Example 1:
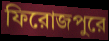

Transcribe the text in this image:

ফিরোজপুরে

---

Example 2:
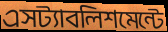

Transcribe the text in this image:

এসট্যাবলিশমেন্টে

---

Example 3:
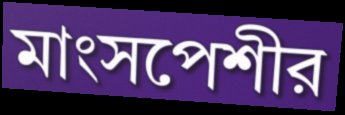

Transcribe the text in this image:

মাংসপেশীর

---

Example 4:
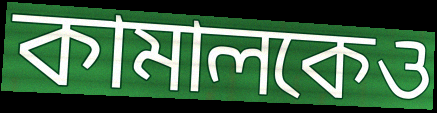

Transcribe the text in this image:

কামালকেও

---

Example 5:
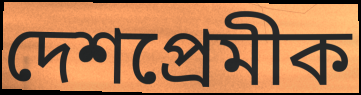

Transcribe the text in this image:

দেশপ্রেমীক